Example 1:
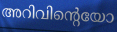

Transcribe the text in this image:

അറിവിന്റെയോ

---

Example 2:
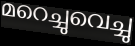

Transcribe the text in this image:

മറെച്ചുവെച്ചു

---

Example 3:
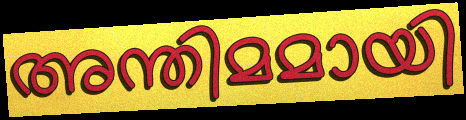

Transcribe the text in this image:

അന്തിമമായി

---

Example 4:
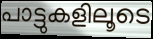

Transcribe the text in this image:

പാട്ടുകളിലൂടെ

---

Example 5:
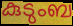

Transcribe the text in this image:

കുടുംബ